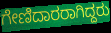
ಗೇಣಿದಾರರಾಗಿದ್ದರು